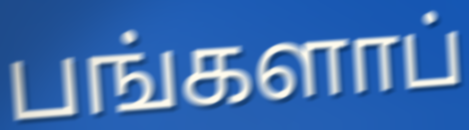
பங்களாப்